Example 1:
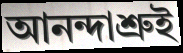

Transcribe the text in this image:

আনন্দাশ্রুই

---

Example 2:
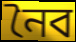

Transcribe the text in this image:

নৈব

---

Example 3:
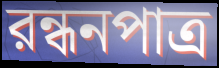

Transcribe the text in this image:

রন্ধনপাত্র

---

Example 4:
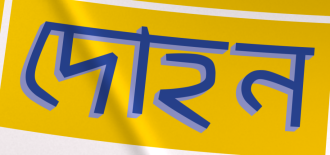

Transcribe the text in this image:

দোহন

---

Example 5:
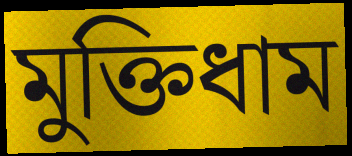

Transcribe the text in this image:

মুক্তিধাম